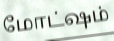
மோட்ஷம்